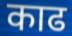
काढ